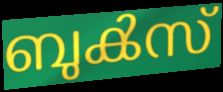
ബുൿസ്